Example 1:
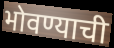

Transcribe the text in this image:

भोवण्याची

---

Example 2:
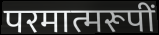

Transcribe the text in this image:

परमात्मरूपीं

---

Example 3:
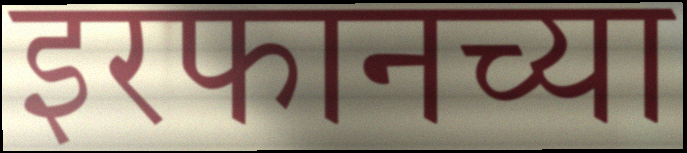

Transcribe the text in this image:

इरफानच्या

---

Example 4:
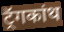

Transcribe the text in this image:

ट्रॅगकांथ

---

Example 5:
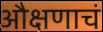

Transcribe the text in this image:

औक्षणाचं